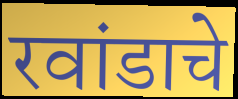
रवांडाचे